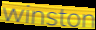
winston